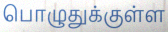
பொழுதுக்குள்ள